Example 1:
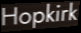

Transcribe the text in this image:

Hopkirk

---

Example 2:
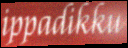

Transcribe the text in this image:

ippadikku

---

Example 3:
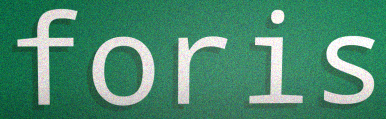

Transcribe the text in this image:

foris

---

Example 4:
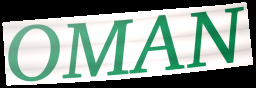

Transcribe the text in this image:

OMAN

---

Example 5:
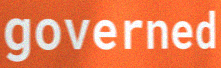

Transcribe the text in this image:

governed